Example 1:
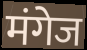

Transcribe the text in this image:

मंगेज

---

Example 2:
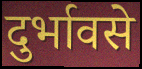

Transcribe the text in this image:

दुर्भावसे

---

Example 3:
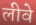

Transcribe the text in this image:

लीवे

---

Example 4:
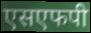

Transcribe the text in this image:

एसएफपी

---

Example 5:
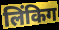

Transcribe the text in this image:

लिंकिग